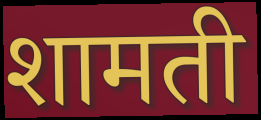
शामती